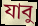
যাবু